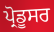
ਪ੍ਰੋਡੂਸਰ